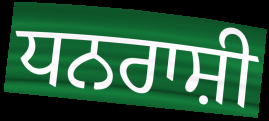
ਧਨਰਾਸ਼ੀ